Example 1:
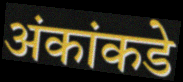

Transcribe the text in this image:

अंकांकडे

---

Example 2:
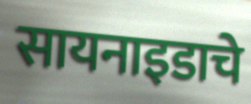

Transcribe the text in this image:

सायनाइडाचे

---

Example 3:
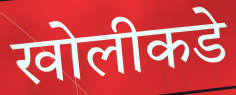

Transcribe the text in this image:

खोलीकडे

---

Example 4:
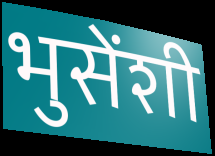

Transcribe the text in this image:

भुसेंशी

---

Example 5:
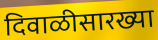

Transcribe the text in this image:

दिवाळीसारख्या